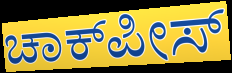
ಚಾಕ್‌ಪೀಸ್